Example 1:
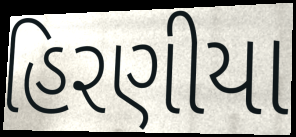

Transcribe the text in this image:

હિરણીયા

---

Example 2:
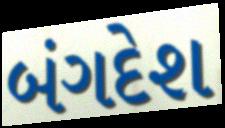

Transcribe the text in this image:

બંગદેશ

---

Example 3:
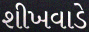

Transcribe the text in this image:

શીખવાડે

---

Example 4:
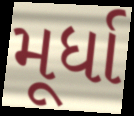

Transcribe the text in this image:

મૂર્ધા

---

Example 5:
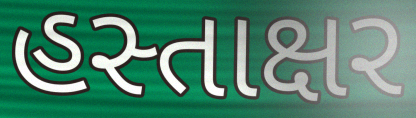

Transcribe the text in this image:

હસ્તાક્ષર